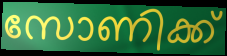
സോണിക്ക്